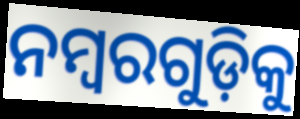
ନମ୍ବରଗୁଡ଼ିକୁ